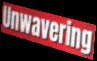
Unwavering